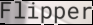
Flipper